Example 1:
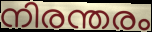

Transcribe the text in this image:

നിരന്തരം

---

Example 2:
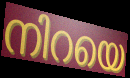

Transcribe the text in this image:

നിറയെ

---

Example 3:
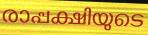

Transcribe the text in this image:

രാപ്പക്ഷിയുടെ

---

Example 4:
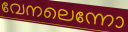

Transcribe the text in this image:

വേനലെന്നോ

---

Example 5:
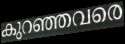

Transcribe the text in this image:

കുറഞ്ഞവരെ